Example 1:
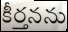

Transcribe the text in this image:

కీర్తనను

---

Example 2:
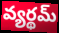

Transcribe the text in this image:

వ్యర్థమ్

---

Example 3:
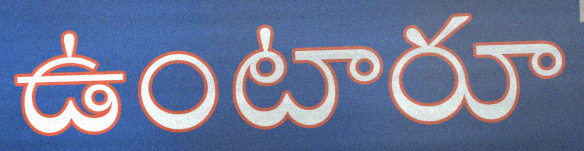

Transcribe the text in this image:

ఉంటారూ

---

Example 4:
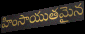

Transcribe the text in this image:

హింసాయుతమైన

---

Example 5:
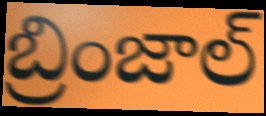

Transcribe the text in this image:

బ్రింజాల్